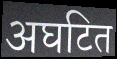
अघटित